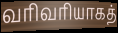
வரிவரியாகத்